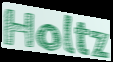
Holtz